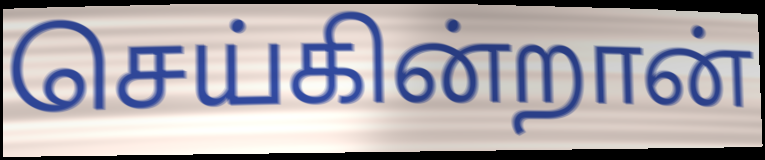
செய்கின்றான்